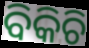
ବିକିଚି